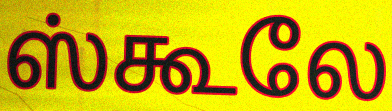
ஸ்கூலே